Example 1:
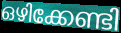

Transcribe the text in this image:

ഒഴിക്കേണ്ടി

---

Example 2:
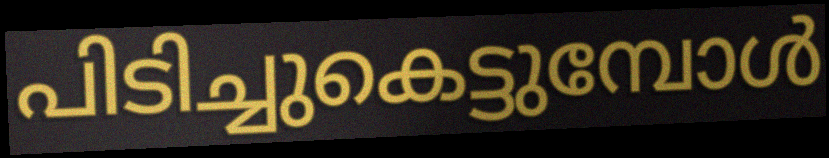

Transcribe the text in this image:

പിടിച്ചുകെട്ടുമ്പോൾ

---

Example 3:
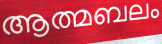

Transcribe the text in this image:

ആത്മബലം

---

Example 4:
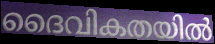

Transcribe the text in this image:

ദൈവികതയിൽ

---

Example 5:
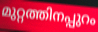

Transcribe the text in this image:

മുറ്റത്തിനപ്പുറം